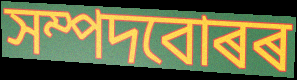
সম্পদবোৰৰ